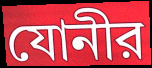
যোনীর